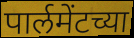
पार्लमेंटच्या